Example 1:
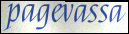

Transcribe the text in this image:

pagevassa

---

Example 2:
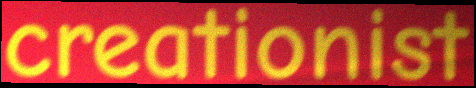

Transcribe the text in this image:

creationist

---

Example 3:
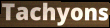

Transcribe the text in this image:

Tachyons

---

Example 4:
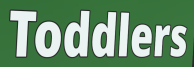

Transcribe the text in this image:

Toddlers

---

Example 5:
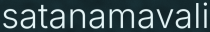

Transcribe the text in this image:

satanamavali